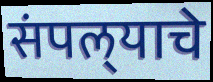
संपल्याचे